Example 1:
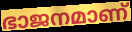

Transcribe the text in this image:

ഭാജനമാണ്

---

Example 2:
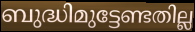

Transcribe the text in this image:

ബുദ്ധിമുട്ടേണ്ടതില്ല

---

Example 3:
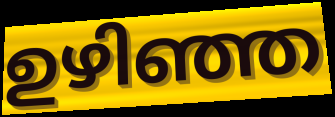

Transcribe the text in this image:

ഉഴിഞ്ഞ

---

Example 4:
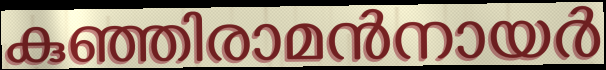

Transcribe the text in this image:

കുഞ്ഞിരാമൻനായർ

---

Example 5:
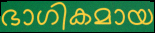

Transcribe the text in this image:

ഭാഗികമായ